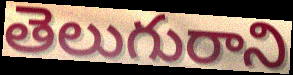
తెలుగురాని